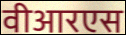
वीआरएस